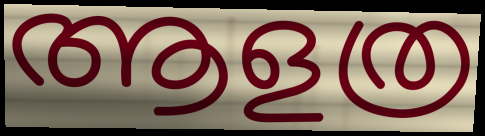
ആളത്ര